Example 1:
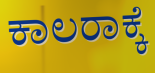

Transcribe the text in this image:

ಕಾಲರಾಕ್ಕೆ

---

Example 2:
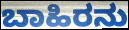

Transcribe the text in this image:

ಬಾಹಿರನು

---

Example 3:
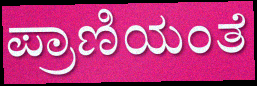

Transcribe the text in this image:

ಪ್ರಾಣಿಯಂತೆ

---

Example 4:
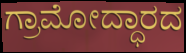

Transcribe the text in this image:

ಗ್ರಾಮೋದ್ಧಾರದ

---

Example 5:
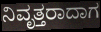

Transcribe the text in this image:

ನಿವೃತ್ತರಾದಾಗ